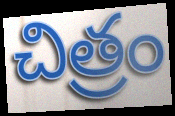
చిత్రం